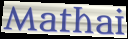
Mathai